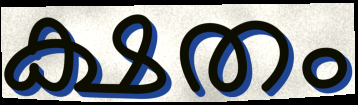
ക്ഷതം